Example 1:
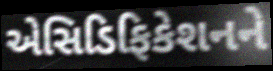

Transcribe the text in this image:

એસિડિફિકેશનને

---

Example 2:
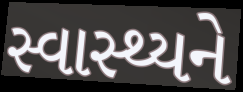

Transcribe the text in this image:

સ્વાસ્થ્યને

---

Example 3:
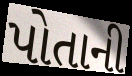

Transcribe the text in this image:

પોતાની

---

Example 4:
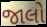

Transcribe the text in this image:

જાલો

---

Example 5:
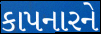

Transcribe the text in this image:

કાપનારને